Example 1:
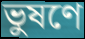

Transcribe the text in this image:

ভুষণে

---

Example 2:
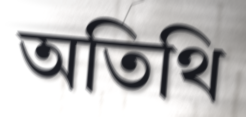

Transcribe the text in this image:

অতিথি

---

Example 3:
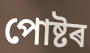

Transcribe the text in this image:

পোষ্টৰ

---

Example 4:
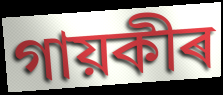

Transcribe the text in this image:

গায়কীৰ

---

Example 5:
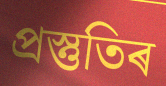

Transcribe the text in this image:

প্ৰস্তুতিৰ